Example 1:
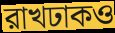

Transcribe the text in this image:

রাখঢাকও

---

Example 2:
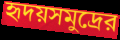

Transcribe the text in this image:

হৃদয়সমুদ্রের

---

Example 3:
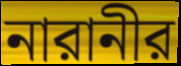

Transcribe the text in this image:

নারানীর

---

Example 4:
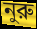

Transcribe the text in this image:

নুরু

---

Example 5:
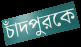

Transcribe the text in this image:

চাঁদপুরকে